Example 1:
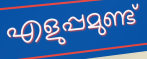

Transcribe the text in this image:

എളുപ്പമുണ്ട്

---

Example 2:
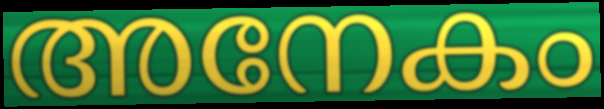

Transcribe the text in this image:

അനേകം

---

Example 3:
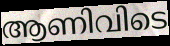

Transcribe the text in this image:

ആണിവിടെ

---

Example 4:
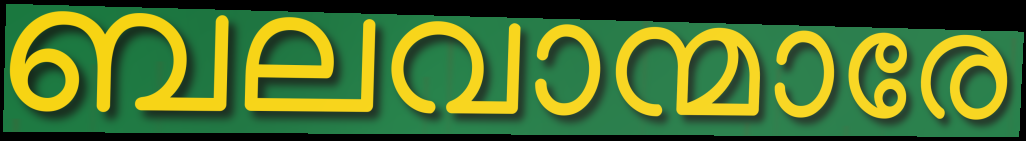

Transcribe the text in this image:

ബലവാന്മാരേ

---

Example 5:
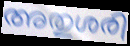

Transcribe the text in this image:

അതുശരി